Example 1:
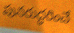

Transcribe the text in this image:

పునరుద్ధరించే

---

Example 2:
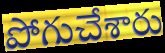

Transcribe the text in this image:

పోగుచేశారు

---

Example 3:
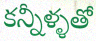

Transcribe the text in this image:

కన్నీళ్ళతో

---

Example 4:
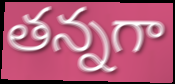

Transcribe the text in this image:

తన్నగా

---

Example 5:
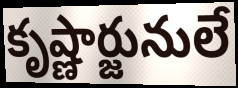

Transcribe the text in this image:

కృష్ణార్జునులే